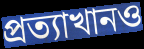
প্রত্যাখানও